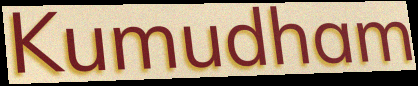
Kumudham